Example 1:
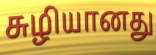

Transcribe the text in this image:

சுழியானது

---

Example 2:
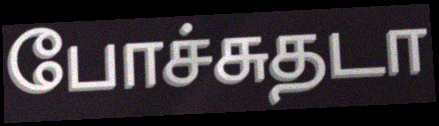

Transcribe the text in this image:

போச்சுதடா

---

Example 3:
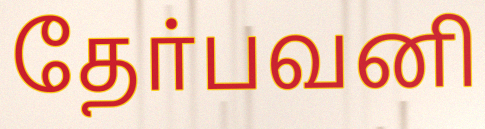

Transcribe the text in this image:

தேர்பவனி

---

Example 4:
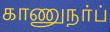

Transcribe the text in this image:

காணுநர்ப்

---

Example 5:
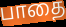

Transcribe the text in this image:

பாதை